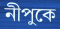
নীপুকে